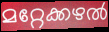
മറ്റേക്കഴൽ